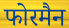
फोरमैन